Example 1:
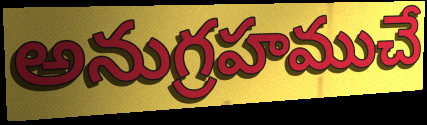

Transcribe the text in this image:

అనుగ్రహముచే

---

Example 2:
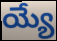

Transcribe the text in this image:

య్యే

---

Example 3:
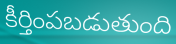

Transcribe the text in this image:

కీర్తింపబడుతుంది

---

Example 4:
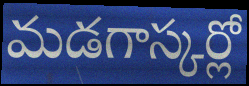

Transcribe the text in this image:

మడగాస్కర్లో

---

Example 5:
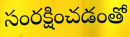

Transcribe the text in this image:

సంరక్షించడంతో